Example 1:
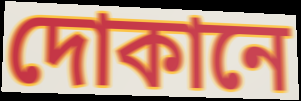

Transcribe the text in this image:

দোকানে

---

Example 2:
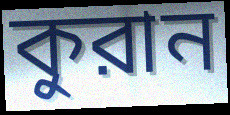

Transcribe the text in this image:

কুরান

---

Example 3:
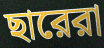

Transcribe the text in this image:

ছারেরা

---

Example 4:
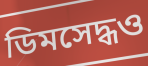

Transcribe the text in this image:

ডিমসেদ্ধও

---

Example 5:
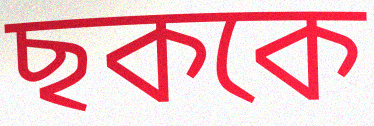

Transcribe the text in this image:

ছককে